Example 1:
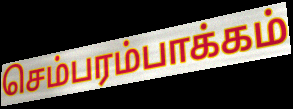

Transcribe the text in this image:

செம்பரம்பாக்கம்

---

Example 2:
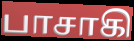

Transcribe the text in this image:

பாசாகி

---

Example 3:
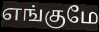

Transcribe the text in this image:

எங்குமே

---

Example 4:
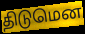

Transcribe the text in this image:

திடுமென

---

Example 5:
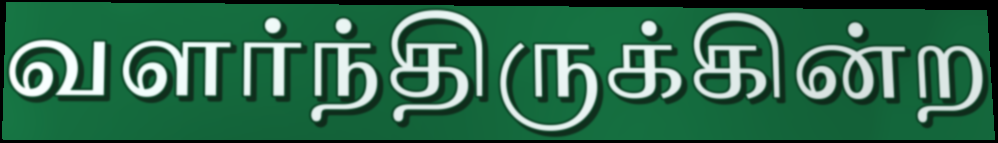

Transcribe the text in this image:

வளர்ந்திருக்கின்ற